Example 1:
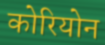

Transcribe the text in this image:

कोरियोन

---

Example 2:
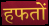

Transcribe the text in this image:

हफतों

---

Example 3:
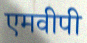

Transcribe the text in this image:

एमवीपी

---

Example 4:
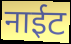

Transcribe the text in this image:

नाईट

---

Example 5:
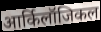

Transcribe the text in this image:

आर्किलॉजिकल